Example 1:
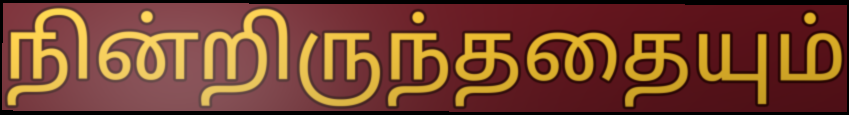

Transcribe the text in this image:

நின்றிருந்ததையும்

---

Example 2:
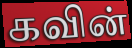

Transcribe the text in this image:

கவின்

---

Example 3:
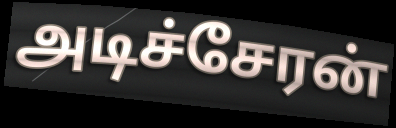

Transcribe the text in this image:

அடிச்சேரன்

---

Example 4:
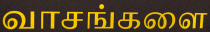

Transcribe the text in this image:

வாசங்களை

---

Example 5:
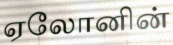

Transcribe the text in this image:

ஏலோனின்